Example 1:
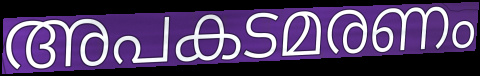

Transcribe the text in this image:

അപകടമരണം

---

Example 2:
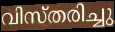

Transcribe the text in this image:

വിസ്തരിച്ചു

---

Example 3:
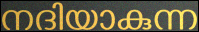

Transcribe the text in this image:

നദിയാകുന്ന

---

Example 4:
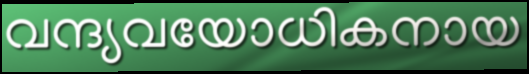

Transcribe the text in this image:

വന്ദ്യവയോധികനായ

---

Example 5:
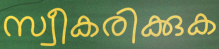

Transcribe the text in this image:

സ്വീകരിക്കുക